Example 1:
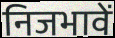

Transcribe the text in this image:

निजभावें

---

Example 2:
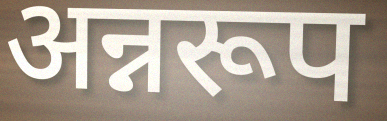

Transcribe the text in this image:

अन्नरूप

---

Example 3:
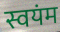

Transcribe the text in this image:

स्वयंम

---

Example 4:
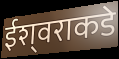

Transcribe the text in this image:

ईश्वराकडे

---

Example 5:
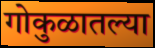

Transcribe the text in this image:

गोकुळातल्या